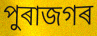
পুৰাজগৰ